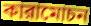
কারামোচন